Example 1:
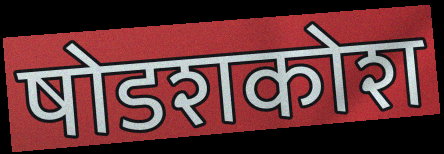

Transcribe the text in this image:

षोडशकोश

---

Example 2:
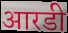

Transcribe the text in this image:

आरडी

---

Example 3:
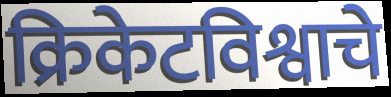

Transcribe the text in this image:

क्रिकेटविश्वाचे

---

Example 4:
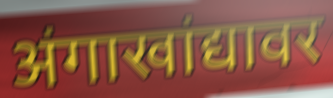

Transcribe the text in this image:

अंगाखांद्यावर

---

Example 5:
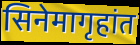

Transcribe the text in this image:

सिनेमागृहांत